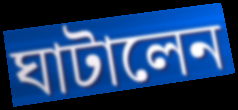
ঘাটালেন